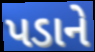
પડાને